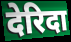
देरिदा